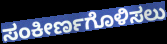
ಸಂಕೀರ್ಣಗೊಳಿಸಲು